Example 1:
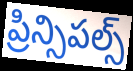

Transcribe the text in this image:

ప్రిన్సిపల్స్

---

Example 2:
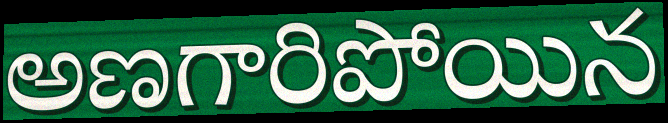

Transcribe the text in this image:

అణగారిపోయిన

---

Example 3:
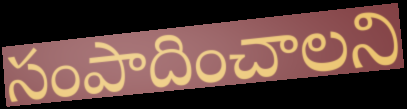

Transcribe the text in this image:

సంపాదించాలని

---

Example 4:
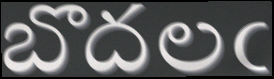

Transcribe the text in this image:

బొదలఁ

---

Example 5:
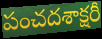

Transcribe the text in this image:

పంచదశాక్షరీ